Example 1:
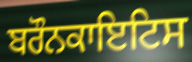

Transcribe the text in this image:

ਬਰੌਨਕਾਇਟਿਸ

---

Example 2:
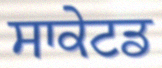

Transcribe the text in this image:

ਸਾਕੇਟਡ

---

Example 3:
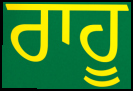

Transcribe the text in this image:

ਰਾਹੂ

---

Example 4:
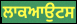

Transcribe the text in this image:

ਲਾਕਆਉਟਸ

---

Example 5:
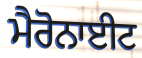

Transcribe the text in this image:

ਮੈਰੋਨਾਈਟ